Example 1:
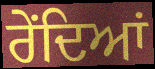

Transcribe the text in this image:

ਰੇਂਦਿਆਂ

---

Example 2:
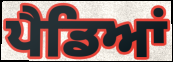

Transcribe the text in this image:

ਪੈਡਿਆਂ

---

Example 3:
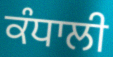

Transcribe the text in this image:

ਕੰਧਾਲੀ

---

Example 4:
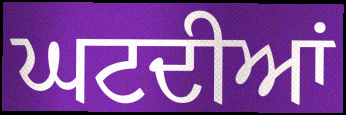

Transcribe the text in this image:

ਘਟਦੀਆਂ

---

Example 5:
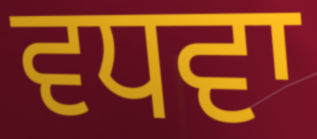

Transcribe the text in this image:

ਵਧਵਾ